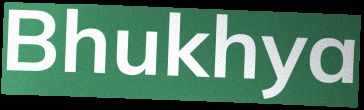
Bhukhya